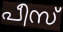
പീസ്